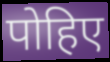
पोहिए